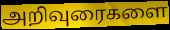
அறிவுரைகளை